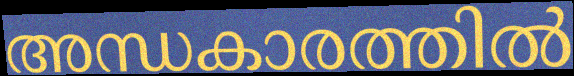
അന്ധകാരത്തിൽ